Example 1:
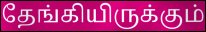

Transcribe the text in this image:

தேங்கியிருக்கும்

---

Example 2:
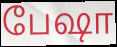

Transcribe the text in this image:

பேஷா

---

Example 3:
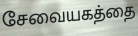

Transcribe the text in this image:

சேவையகத்தை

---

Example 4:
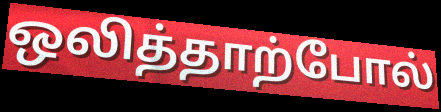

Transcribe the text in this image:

ஒலித்தாற்போல்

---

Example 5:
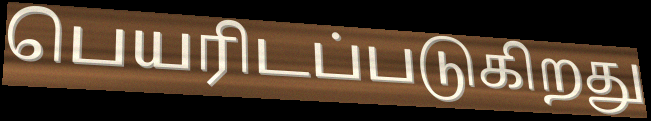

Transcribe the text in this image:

பெயரிடப்படுகிறது